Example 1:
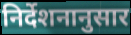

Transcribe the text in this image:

निर्देशनानुसार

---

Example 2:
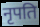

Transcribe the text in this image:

नृपति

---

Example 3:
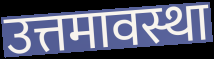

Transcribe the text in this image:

उत्तमावस्था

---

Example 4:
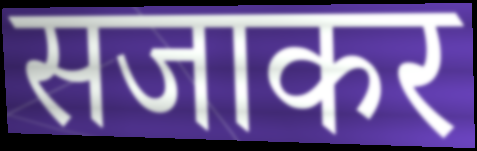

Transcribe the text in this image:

सजाकर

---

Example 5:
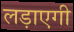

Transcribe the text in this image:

लड़ाएगी